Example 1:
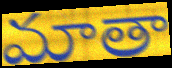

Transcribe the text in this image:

మాతా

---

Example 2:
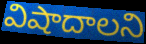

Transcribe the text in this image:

విషాదాలని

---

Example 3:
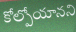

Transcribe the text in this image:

కోల్పోయానని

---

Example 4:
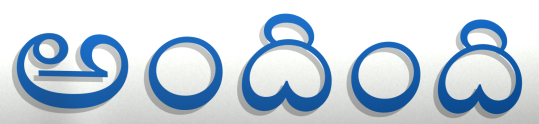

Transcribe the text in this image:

అందింది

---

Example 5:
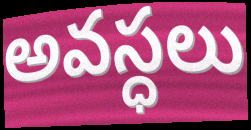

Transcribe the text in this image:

అవస్ధలు